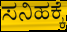
ಸನಿಹಕ್ಕೆ